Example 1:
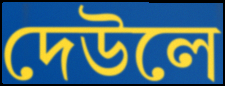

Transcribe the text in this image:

দেউলে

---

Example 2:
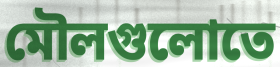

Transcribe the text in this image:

মৌলগুলোতে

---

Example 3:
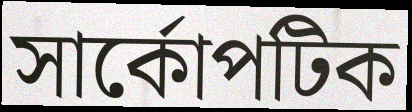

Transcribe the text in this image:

সার্কোপটিক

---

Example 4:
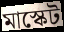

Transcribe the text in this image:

মাস্কেট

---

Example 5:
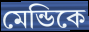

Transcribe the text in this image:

মেন্ডিকে